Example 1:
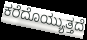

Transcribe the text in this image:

ಕರೆದೊಯ್ಯುತ್ತದೆ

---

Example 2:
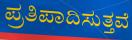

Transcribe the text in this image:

ಪ್ರತಿಪಾದಿಸುತ್ತವೆ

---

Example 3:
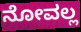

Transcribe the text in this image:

ನೋವಲ್ಲ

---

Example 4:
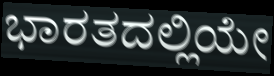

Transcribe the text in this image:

ಭಾರತದಲ್ಲಿಯೇ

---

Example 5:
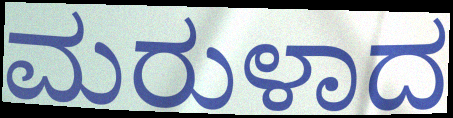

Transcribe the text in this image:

ಮರುಳಾದ